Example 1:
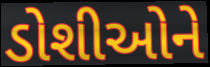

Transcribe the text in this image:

ડોશીઓને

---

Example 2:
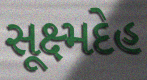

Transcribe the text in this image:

સૂક્ષ્મદેહ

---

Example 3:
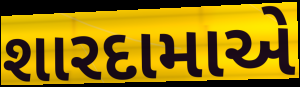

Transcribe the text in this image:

શારદામાએ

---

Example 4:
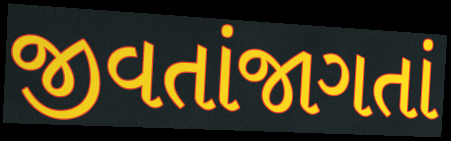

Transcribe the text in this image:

જીવતાંજાગતાં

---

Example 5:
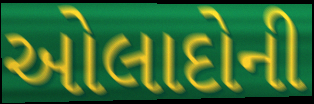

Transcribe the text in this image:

ઓલાદોની